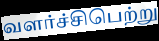
வளர்ச்சிபெற்று